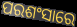
ପରଶଂସାରେ